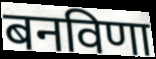
बनविणा